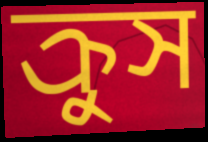
ক্রুস